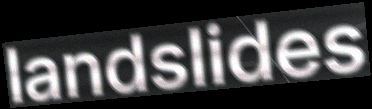
landslides